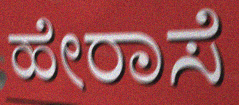
ಹೇರಾಸೆ